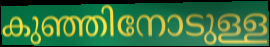
കുഞ്ഞിനോടുള്ള